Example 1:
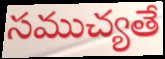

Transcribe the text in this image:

సముచ్యతే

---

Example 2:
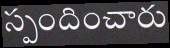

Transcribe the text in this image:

స్పందించారు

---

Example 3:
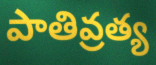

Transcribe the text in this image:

పాతివ్రత్య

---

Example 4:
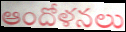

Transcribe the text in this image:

ఆందోళనలు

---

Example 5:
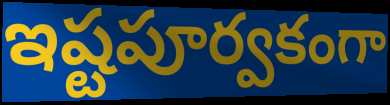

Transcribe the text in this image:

ఇష్టపూర్వకంగా